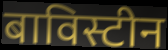
बाविस्टीन